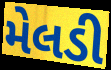
મેલડી